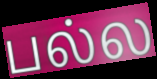
பல்ல